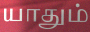
யாதும்